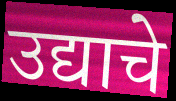
उद्याचे